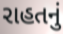
રાહતનું